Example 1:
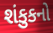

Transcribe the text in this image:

શંકુકનો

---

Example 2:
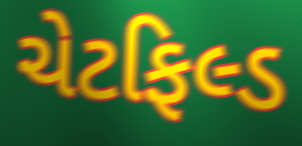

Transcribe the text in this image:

ચેટફિલ્ડ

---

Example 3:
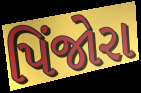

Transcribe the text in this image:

પિંજોરા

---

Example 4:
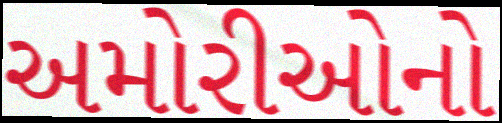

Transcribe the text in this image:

અમોરીઓનો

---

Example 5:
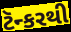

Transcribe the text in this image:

ટૅન્કરથી